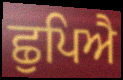
ਛੁਪਿਐ